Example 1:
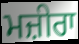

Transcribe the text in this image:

ਮਜ਼ੀਰਾ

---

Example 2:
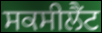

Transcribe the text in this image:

ਸਕਸੀਲੈਂਟ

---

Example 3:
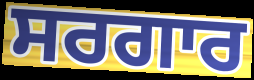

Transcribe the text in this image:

ਸਰਗਾਰ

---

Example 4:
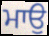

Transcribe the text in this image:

ਮਾਉ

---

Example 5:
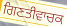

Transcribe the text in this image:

ਗਿਣਤੀਵਾਚਕ